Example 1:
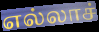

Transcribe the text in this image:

எல்லாச்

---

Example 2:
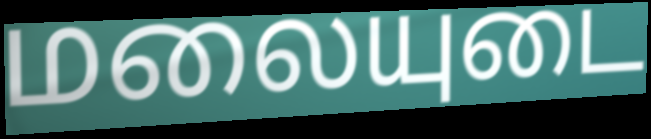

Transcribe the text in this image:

மலையுடை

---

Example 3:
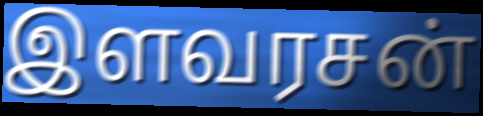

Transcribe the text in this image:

இளவரசன்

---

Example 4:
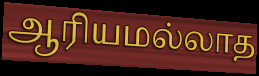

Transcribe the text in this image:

ஆரியமல்லாத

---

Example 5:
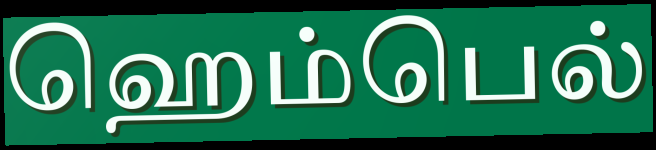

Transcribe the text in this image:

ஹெம்பெல்